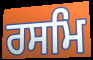
ਰਸਮਿ